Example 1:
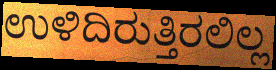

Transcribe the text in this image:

ಉಳಿದಿರುತ್ತಿರಲಿಲ್ಲ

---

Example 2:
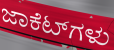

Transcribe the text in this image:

ಜಾಕೆಟ್‌ಗಳು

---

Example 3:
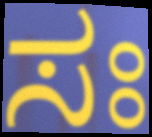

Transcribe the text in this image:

ಸಃ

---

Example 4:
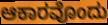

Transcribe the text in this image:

ಆಕಾರವೊಂದು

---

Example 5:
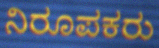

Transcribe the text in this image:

ನಿರೂಪಕರು